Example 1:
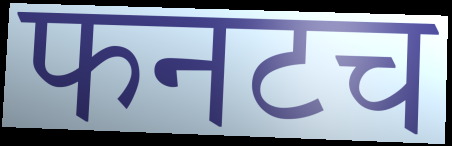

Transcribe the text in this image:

फनटच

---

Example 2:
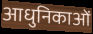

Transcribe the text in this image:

आधुनिकाओं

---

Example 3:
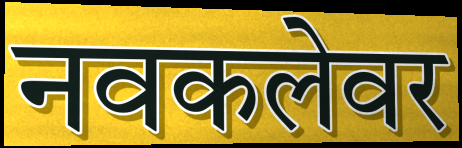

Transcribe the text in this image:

नवकलेवर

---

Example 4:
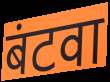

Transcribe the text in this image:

बंटवा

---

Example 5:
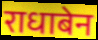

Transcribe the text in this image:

राधाबेन